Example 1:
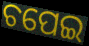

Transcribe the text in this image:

ଚପେଇ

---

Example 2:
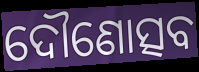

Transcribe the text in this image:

ଦୌଣୋତ୍ସବ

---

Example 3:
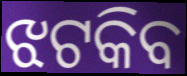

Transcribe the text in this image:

ଝଟକିବ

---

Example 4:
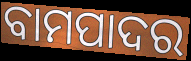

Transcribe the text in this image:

ବାମପାଦର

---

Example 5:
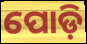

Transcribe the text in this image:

ପୋଡ଼ି